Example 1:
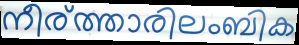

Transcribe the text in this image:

നീര്ത്താരിലംബിക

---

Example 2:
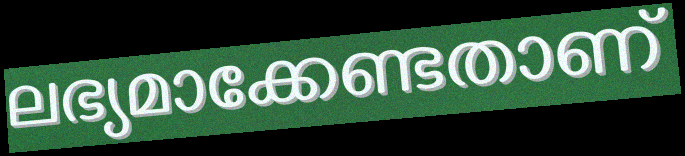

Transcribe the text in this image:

ലഭ്യമാക്കേണ്ടതാണ്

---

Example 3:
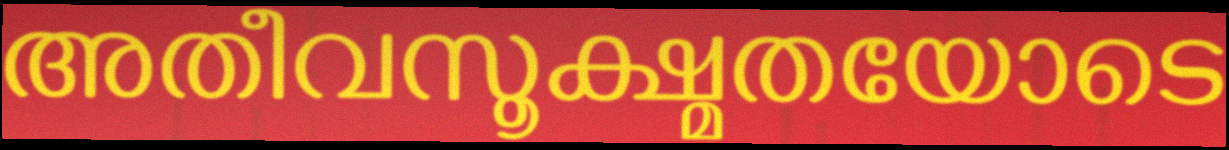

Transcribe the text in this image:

അതീവസൂക്ഷ്മതയോടെ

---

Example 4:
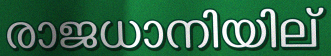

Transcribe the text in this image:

രാജധാനിയില്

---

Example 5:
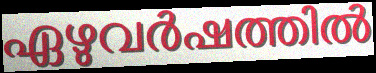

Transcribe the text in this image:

ഏഴുവർഷത്തിൽ